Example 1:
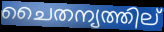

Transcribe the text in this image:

ചൈതന്യത്തില്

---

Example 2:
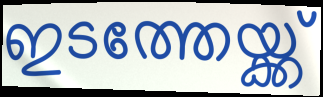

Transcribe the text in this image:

ഇടത്തേയ്ക്ക്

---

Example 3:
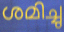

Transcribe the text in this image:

ശമിച്ചു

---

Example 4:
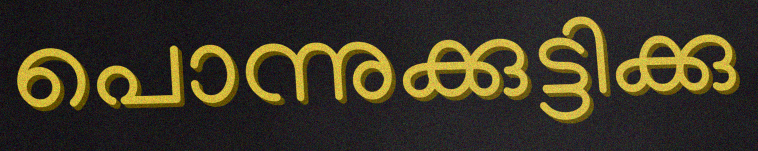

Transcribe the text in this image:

പൊന്നുക്കുട്ടിക്കു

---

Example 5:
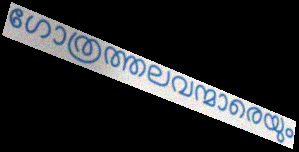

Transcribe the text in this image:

ഗോത്രത്തലവന്മാരെയും